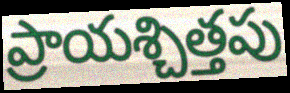
ప్రాయశ్చిత్తపు